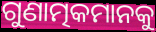
ଗୁଣାତ୍ମକମାନକୁ